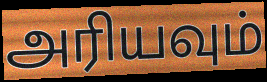
அரியவும்